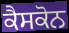
ਕੈਸਕੋਨ